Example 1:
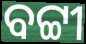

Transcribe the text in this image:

ବଟ୍ଟୀ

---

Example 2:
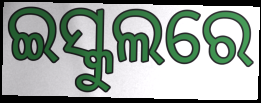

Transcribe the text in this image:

ଇସ୍କୁଲରେ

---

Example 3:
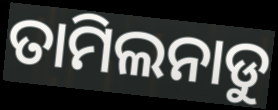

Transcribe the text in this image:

ତାମିଲନାଡୁ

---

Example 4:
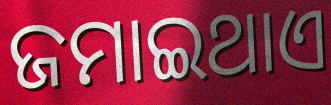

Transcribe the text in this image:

ଜମାଇଥାଏ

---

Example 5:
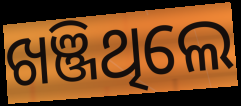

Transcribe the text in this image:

ଖଞ୍ଜିଥିଲେ